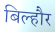
बिल्हौर